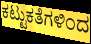
ಕಟ್ಟುಕತೆಗಳಿಂದ